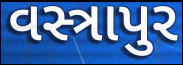
વસ્ત્રાપુર